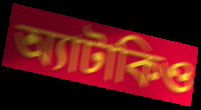
অ্যাটাকিও